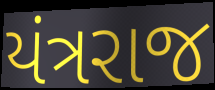
યંત્રરાજ